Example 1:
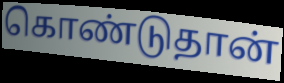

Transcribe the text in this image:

கொண்டுதான்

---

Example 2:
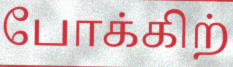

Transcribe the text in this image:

போக்கிற்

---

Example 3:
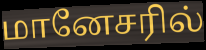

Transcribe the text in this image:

மானேசரில்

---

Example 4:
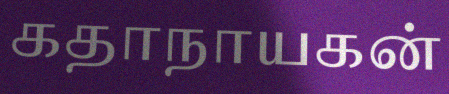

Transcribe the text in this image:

கதாநாயகன்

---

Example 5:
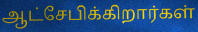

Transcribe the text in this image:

ஆட்சேபிக்கிறார்கள்